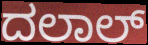
ದಲಾಲ್